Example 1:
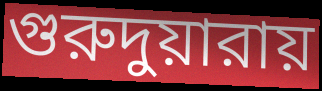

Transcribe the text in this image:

গুরুদুয়ারায়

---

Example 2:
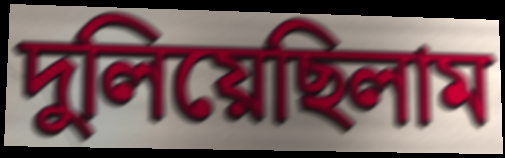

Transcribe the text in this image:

দুলিয়েছিলাম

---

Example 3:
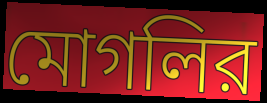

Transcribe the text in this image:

মোগলির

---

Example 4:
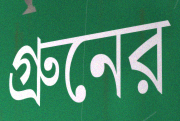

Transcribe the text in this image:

গ্রুনের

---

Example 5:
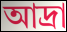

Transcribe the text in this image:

আদ্রা